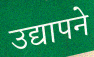
उद्यापने